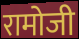
रामोजी